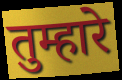
तुम्हारे